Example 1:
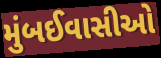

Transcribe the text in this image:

મુંબઈવાસીઓ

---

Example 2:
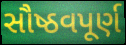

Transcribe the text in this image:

સૌષ્ઠવપૂર્ણ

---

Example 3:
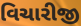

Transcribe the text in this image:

વિચારીજી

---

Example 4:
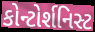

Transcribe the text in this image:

કોન્ટોર્શનિસ્ટ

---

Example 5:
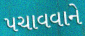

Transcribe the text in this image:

પચાવવાને